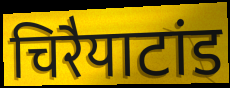
चिरैयाटांड